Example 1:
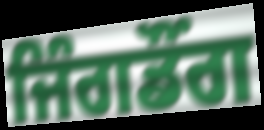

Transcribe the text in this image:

ਜਿੰਗਡੌਂਗ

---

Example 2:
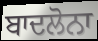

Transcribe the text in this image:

ਬਾਦਲੋਨਾ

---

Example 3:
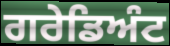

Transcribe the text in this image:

ਗਰੇਡਿਅੰਟ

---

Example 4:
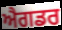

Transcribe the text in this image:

ਐਗਡਰ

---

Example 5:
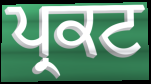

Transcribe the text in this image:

ਪ੍ਰਕਟ